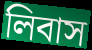
লিবাস